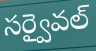
సర్వైవల్